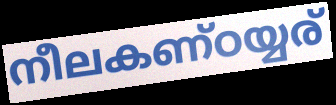
നീലകണ്ഠയ്യര്